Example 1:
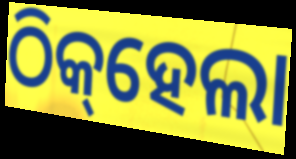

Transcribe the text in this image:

ଠିକ୍‌ହେଲା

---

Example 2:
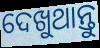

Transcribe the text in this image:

ଦେଖୁଥାନ୍ତୁ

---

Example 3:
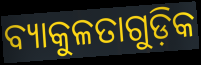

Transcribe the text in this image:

ବ୍ୟାକୁଳତାଗୁଡ଼ିକ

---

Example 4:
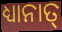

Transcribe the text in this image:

ଧ୍ୟାନାତ୍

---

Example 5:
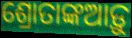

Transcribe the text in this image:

ଶ୍ରୋତାଙ୍କଆଡ଼ୁ